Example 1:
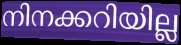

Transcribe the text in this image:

നിനക്കറിയില്ല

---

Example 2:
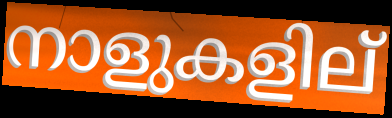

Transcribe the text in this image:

നാളുകളില്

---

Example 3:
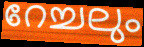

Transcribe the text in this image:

റേച്ചലും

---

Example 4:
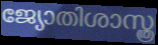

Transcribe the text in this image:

ജ്യോതിശാസ്ത്ര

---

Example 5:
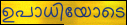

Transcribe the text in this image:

ഉപാധിയോടെ